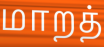
மாறத்